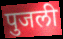
पुजली